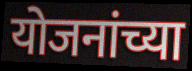
योजनांच्या